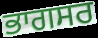
ਭਾਗਸਰ